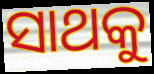
ସାଥକୁ